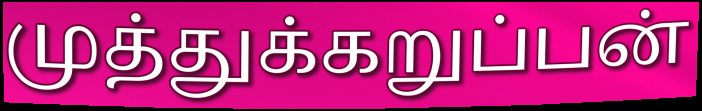
முத்துக்கறுப்பன்